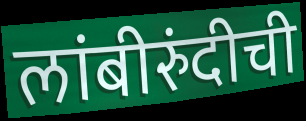
लांबीरुंदीची